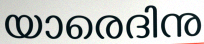
യാരെദിനു